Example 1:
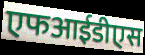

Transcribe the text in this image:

एफआईडीएस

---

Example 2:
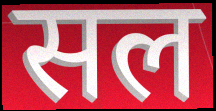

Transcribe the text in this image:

सल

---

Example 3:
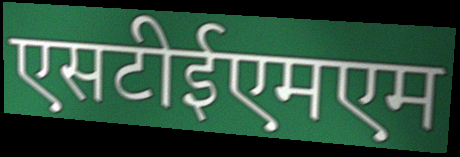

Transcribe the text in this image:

एसटीईएमएम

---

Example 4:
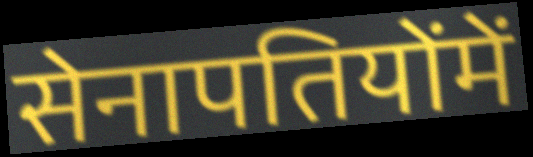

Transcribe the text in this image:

सेनापतियोंमें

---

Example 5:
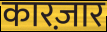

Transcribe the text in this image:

कारज़ार